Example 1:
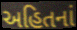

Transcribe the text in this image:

અહિતનાં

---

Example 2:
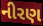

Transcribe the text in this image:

નીરણ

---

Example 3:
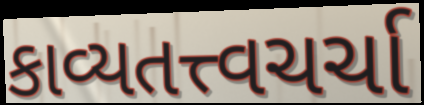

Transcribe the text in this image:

કાવ્યતત્ત્વચર્ચા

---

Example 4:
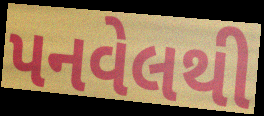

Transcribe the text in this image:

પનવેલથી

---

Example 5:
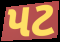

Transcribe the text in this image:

પટ